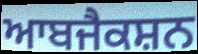
ਆਬਜੈਕਸ਼ਨ